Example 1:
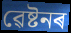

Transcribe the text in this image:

ৱেষ্টনৰ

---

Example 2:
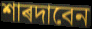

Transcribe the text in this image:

শাৰদাবেন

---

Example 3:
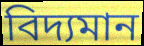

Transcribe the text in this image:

বিদ্যমান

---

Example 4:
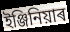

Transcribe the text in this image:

ইঞ্জিনিয়াৰ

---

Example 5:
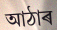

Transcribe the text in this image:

আঠাৰ